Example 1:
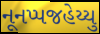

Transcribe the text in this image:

નૂનપ્પજહેય્યુ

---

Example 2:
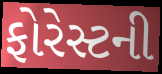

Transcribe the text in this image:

ફોરેસ્ટની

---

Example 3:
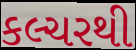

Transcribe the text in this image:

કલ્ચરથી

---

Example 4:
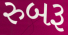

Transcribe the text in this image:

રુબરૂ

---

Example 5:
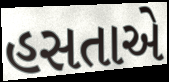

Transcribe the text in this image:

હસતાએ